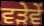
ਵੜੇਵੇਂ